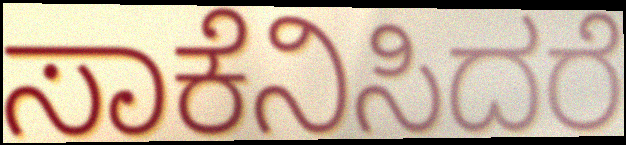
ಸಾಕೆನಿಸಿದರೆ